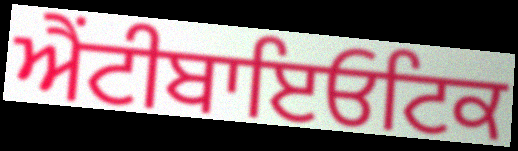
ਐਂਟੀਬਾਇਓਟਿਕ